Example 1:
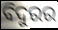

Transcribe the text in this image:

ବିଦୁରର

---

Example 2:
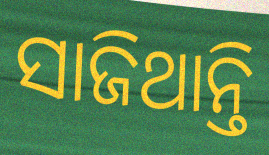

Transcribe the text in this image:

ସାଜିଥାନ୍ତି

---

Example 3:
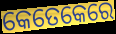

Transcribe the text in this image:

କେତେକେରେ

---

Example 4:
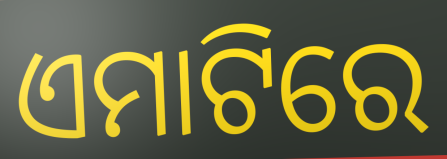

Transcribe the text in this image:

ଏମାଟିରେ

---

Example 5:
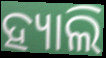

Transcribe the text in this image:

ହ୍ୟାଲି